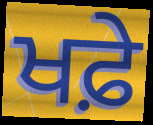
ਖਫ਼ੇ